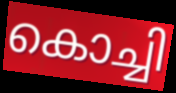
കൊച്ചി